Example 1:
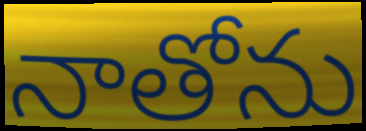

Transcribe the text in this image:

నాతోను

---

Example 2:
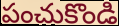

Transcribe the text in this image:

పంచుకొండి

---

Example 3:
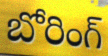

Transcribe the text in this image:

బోరింగ్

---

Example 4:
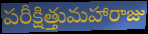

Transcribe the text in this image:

పరీక్షిత్తుమహారాజు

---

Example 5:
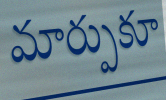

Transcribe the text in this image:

మార్పుకూ